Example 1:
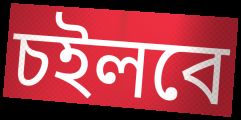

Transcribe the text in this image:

চইলবে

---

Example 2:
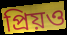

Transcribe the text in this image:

প্রিয়ও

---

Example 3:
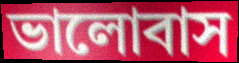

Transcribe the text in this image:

ভালোবাস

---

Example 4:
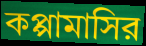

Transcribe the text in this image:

কপ্পামাসির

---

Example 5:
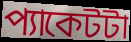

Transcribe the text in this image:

প্যাকেটটা